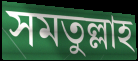
সমতুল্লাহ